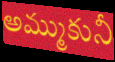
అమ్ముకునీ